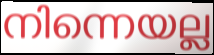
നിന്നെയല്ല